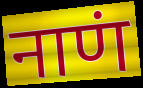
नाणं